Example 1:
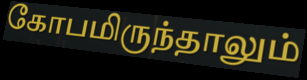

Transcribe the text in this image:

கோபமிருந்தாலும்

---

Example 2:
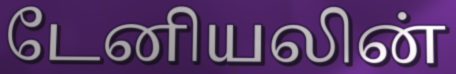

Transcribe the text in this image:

டேனியலின்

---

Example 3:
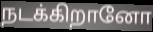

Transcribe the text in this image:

நடக்கிறானோ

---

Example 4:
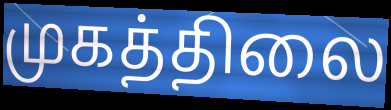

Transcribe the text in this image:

முகத்திலை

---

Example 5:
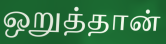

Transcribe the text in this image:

ஒறுத்தான்